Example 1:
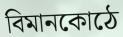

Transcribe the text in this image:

বিমানকোঠে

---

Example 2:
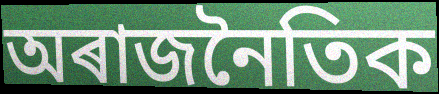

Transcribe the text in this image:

অৰাজনৈতিক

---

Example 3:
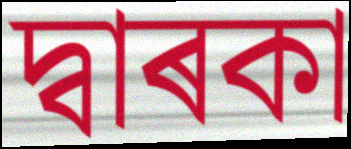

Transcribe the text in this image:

দ্বাৰকা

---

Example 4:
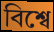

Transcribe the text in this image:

বিশ্বে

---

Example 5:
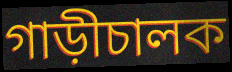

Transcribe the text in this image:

গাড়ীচালক